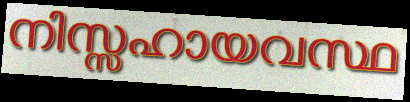
നിസ്സഹായവസ്ഥ